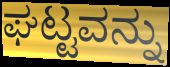
ಘಟ್ಟವನ್ನು